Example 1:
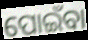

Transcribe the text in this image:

ପୋଇଁବା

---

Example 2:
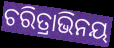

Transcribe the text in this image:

ଚରିତ୍ରାଭିନୟ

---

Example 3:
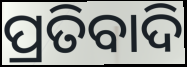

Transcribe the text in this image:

ପ୍ରତିବାଦି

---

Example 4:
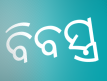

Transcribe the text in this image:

ବିବସ୍ତ୍ର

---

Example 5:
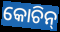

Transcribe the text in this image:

କୋଚିନ୍